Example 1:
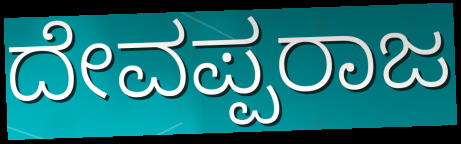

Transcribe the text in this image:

ದೇವಪ್ಪರಾಜ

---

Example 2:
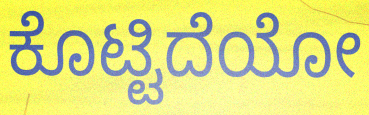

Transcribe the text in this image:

ಕೊಟ್ಟಿದೆಯೋ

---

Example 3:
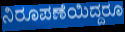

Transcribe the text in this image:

ನಿರೂಪಣೆಯಿದ್ದರೂ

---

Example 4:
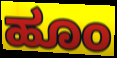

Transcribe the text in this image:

ಹೂಂ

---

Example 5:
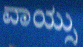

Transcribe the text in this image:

ವಾಯ್ಸು